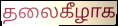
தலைகீழாக